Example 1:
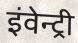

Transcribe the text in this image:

इंवेन्ट्री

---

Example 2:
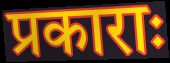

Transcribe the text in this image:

प्रकाराः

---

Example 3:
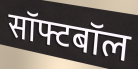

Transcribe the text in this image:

सॉफ्टबॉल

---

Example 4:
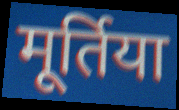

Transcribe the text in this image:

मूर्तिया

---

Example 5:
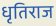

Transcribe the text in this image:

धृतिराज